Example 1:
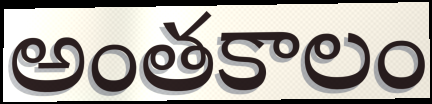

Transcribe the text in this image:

అంతకాలం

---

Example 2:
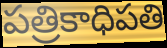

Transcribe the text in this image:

పత్రికాధిపతి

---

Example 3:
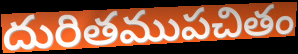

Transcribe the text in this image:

దురితముపచితం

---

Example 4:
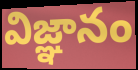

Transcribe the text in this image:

విజ్ఞానం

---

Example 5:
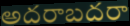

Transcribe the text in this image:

అదరాబదరా